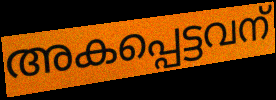
അകപ്പെട്ടവന്